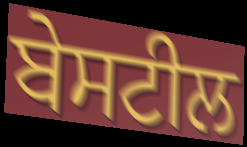
ਬੇਸਟੀਲ